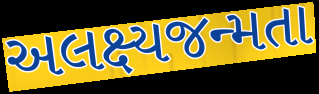
અલક્ષ્યજન્મતા